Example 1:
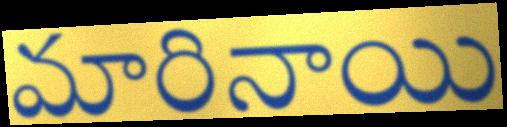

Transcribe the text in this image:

మారినాయి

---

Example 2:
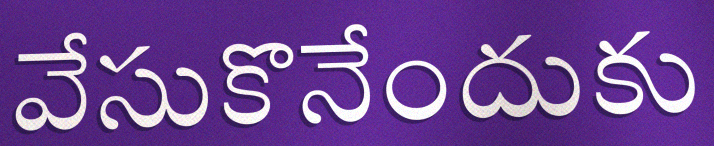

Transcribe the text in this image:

వేసుకొనేందుకు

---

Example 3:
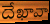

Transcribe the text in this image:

దేఖావా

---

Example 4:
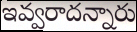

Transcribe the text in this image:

ఇవ్వరాదన్నారు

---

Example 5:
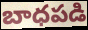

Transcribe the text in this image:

బాధపడి